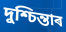
দুশ্চিন্তাৰ